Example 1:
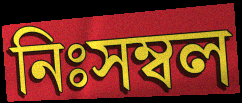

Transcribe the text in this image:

নিঃসম্বল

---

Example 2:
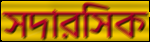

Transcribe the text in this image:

সদারসিক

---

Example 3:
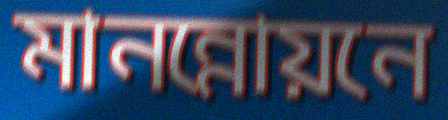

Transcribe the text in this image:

মানন্নোয়নে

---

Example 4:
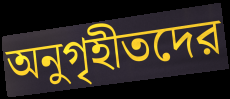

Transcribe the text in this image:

অনুগৃহীতদের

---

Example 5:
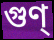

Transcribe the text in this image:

গুণ্